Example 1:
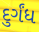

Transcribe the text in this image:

દુર્ગંધ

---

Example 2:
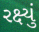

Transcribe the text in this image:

રક્ષ્યું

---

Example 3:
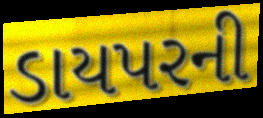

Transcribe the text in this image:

ડાયપરની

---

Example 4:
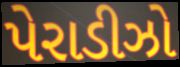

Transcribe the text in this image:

પેરાડીઝો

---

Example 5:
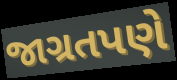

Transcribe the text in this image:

જાગ્રતપણે